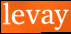
levay